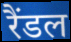
रैंडल